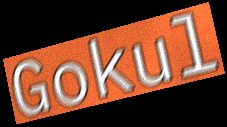
Gokul